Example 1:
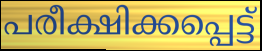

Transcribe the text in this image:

പരീക്ഷിക്കപ്പെട്ട്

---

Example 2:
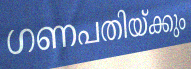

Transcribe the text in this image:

ഗണപതിയ്ക്കും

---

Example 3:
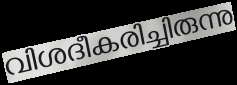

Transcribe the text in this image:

വിശദീകരിച്ചിരുന്നു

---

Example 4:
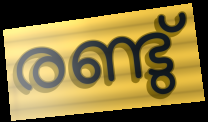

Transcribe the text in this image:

രണ്ടു്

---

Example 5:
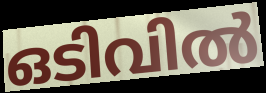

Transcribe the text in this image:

ഒടിവിൽ